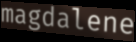
magdalene